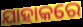
ଯାହାକରେ